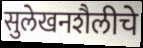
सुलेखनशैलीचे